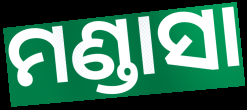
ମଣ୍ଡାସା